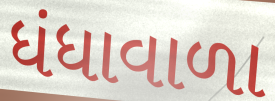
ધંધાવાળા